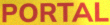
PORTAL